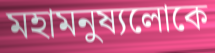
মহামনুষ্যলোকে